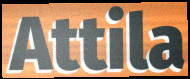
Attila